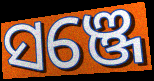
ସଞ୍ଜେ